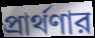
প্রার্থণার